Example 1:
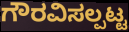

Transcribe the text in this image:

ಗೌರವಿಸಲ್ಪಟ್ಟ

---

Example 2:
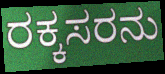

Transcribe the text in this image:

ರಕ್ಕಸರನು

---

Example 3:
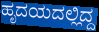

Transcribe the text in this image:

ಹೃದಯದಲ್ಲಿದ್ದ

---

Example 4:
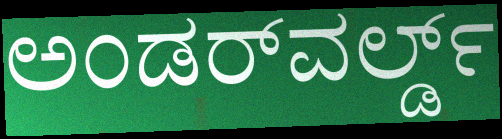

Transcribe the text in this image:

ಅಂಡರ್‌ವರ್ಲ್ಡ್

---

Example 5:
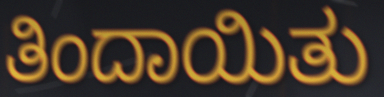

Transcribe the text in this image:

ತಿಂದಾಯಿತು